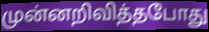
முன்னறிவித்தபோது